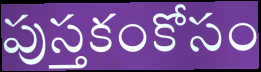
పుస్తకంకోసం